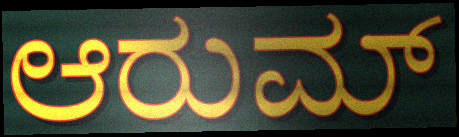
ಆರುಮ್